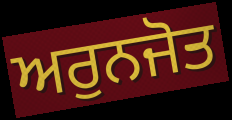
ਅਰੁਨਜੋਤ